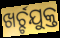
ଖର୍ଚ୍ଚଯୁକ୍ତ